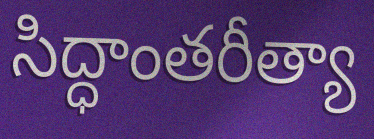
సిద్ధాంతరీత్యా